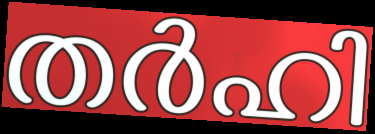
തർഹി